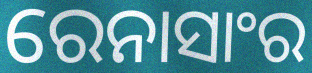
ରେନାସାଂର